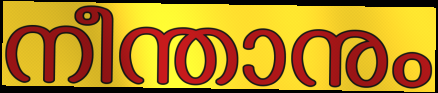
നീന്താനും